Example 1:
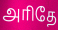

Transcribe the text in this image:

அரிதே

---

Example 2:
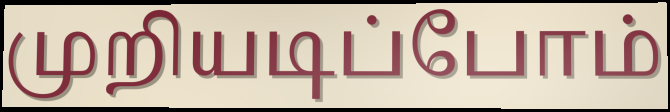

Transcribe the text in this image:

முறியடிப்போம்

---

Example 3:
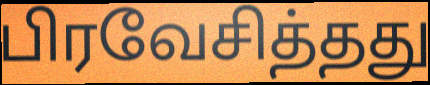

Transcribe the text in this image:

பிரவேசித்தது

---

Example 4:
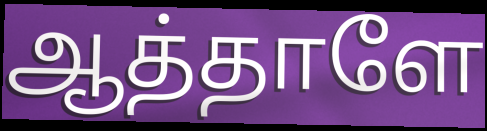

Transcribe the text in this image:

ஆத்தாளே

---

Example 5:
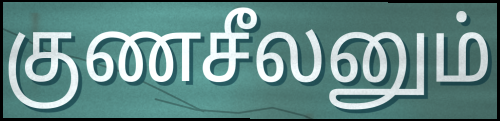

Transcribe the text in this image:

குணசீலனும்